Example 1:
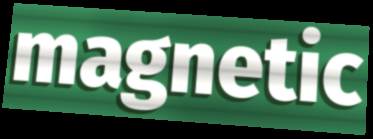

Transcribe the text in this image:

magnetic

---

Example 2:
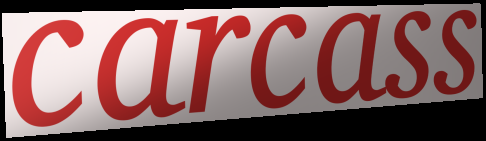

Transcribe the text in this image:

carcass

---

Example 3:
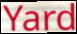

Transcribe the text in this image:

Yard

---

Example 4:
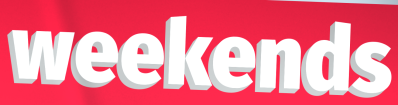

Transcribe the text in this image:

weekends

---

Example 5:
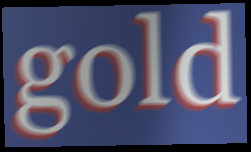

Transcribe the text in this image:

gold